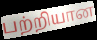
பற்றியான